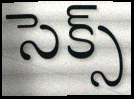
సెక్స్